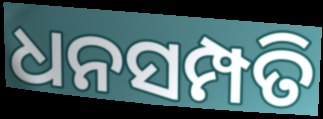
ଧନସମ୍ପତି